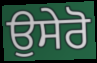
ਉਸੇਰੋ